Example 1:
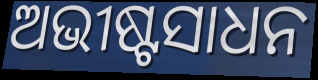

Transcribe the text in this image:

ଅଭୀଷ୍ଟସାଧନ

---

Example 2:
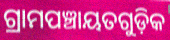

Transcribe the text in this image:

ଗ୍ରାମପଞ୍ଚାୟତଗୁଡ଼ିକ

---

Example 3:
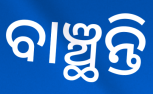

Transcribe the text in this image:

ବାଞ୍ଛନ୍ତି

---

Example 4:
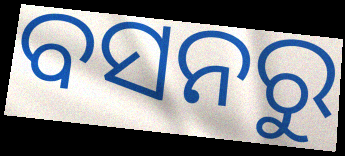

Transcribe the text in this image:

ବସନରୁ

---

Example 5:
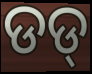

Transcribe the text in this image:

ଡଡ୍